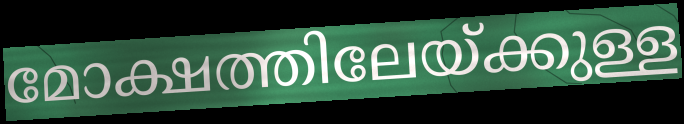
മോക്ഷത്തിലേയ്ക്കുള്ള